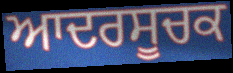
ਆਦਰਸੂਚਕ